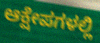
ಆಕ್ಷೇಪಗಳಲ್ಲಿ